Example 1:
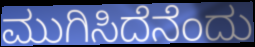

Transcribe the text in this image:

ಮುಗಿಸಿದೆನೆಂದು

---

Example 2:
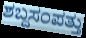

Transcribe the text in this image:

ಶಬ್ದಸಂಪತ್ತು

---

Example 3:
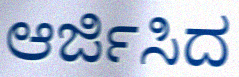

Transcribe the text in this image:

ಆರ್ಜಿಸಿದ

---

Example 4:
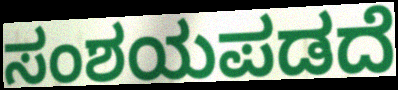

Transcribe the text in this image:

ಸಂಶಯಪಡದೆ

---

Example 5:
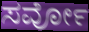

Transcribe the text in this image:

ಸರ್ವೋ